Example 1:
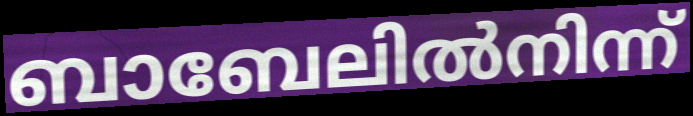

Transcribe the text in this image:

ബാബേലിൽനിന്ന്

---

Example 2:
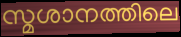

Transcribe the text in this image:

സ്മശാനത്തിലെ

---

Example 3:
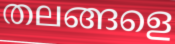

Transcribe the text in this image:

തലങ്ങളെ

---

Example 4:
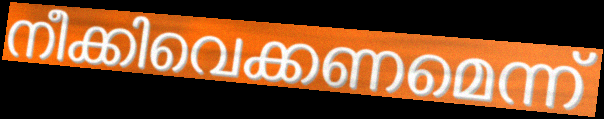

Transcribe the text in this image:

നീക്കിവെക്കണമെന്ന്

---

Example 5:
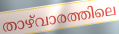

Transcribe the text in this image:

താഴ്‌വാരത്തിലെ